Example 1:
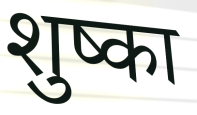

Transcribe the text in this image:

शुष्का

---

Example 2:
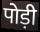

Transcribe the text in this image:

पोड़ी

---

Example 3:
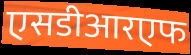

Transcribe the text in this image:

एसडीआरएफ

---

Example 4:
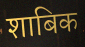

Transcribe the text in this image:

शाबिक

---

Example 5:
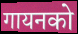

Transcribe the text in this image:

गायनको